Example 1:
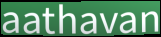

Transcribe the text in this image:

aathavan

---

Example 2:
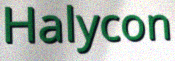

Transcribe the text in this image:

Halycon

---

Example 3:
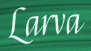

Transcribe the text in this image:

Larva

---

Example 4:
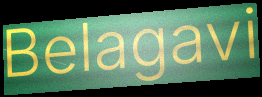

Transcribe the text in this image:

Belagavi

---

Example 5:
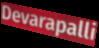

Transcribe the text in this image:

Devarapalli